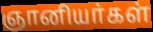
ஞானியர்கள்